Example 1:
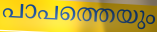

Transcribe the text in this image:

പാപത്തെയും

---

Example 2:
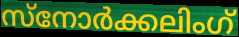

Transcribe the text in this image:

സ്നോർക്കലിംഗ്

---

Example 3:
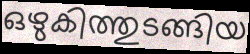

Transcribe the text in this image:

ഒഴുകിത്തുടങ്ങിയ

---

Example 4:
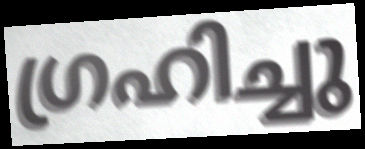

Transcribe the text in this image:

ഗ്രഹിച്ചു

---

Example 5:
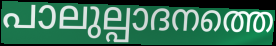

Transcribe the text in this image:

പാലുല്പാദനത്തെ